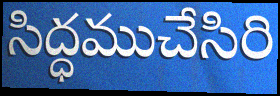
సిద్ధముచేసిరి